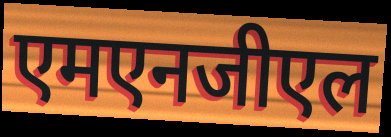
एमएनजीएल